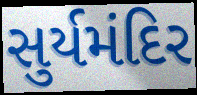
સુર્યમંદિર